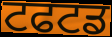
ਟਫਟਡ